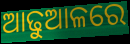
ଆଢୁଆଳରେ